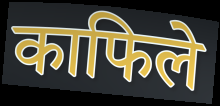
काफिले